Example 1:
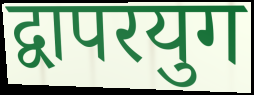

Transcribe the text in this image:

द्वापरयुग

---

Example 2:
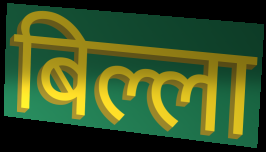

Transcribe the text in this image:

बिल्ला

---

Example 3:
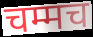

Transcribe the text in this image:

चम्मच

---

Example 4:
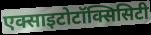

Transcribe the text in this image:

एक्साइटोटॉक्सिसिटी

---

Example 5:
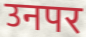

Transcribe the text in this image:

उनपर